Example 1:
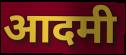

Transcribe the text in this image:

आदमी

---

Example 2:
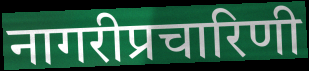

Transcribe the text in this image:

नागरीप्रचारिणी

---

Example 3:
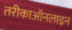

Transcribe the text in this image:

तरीकाऑनलाइन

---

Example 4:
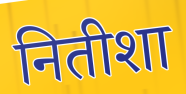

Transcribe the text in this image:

नितीशा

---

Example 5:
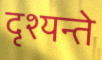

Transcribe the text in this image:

दृश्यन्ते